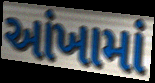
આંખામાં